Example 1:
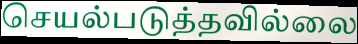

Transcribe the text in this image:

செயல்படுத்தவில்லை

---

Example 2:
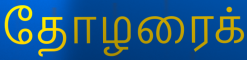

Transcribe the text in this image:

தோழரைக்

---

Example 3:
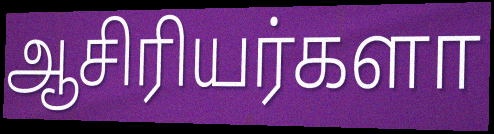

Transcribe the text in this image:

ஆசிரியர்களா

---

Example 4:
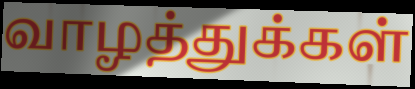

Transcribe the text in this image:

வாழத்துக்கள்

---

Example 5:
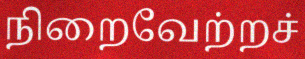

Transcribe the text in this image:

நிறைவேற்றச்